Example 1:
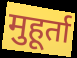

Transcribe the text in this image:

मुहूर्ता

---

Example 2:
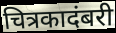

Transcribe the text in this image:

चित्रकादंबरी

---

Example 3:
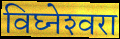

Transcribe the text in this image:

विघ्नेश्वरा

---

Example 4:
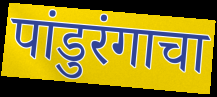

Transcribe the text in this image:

पांडुरंगाचा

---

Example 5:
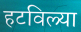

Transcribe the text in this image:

हटविल्या